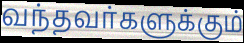
வந்தவர்களுக்கும்